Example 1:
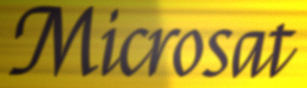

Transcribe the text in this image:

Microsat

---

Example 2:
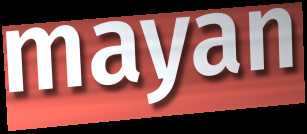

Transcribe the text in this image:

mayan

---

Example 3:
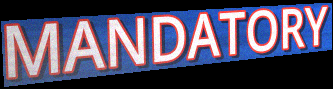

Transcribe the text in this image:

MANDATORY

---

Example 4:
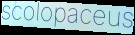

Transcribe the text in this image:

scolopaceus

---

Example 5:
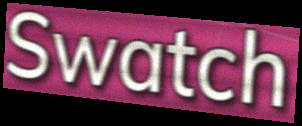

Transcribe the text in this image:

Swatch